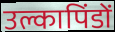
उल्कापिंडों